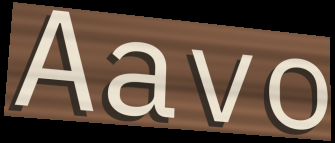
Aavo